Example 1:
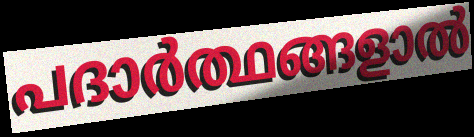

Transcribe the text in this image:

പദാർത്ഥങ്ങളാൽ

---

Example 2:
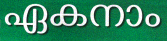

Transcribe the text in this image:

ഏകനാം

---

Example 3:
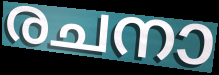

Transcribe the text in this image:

രചനാ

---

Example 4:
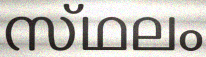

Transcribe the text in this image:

സ്‌ഥലം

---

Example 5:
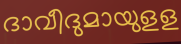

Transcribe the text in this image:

ദാവീദുമായുളള